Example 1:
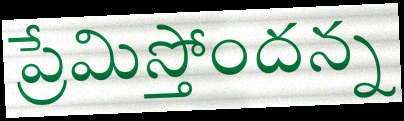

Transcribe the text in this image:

ప్రేమిస్తోందన్న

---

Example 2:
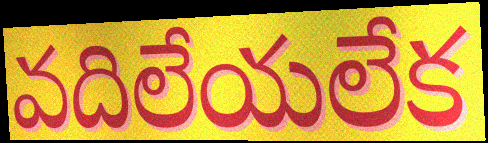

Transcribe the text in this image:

వదిలేయలేక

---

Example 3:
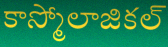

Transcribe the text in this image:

కాస్మోలాజికల్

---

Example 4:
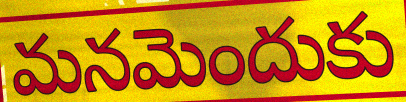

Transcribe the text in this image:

మనమెందుకు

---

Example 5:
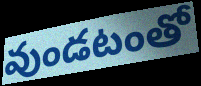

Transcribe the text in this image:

వుండటంతో